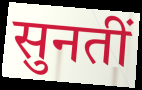
सुनतीं